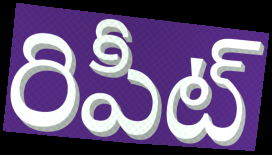
రిపీట్